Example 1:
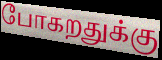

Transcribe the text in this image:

போகறதுக்கு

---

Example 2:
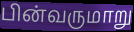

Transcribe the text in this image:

பின்வருமாறு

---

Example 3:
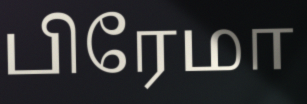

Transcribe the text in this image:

பிரேமா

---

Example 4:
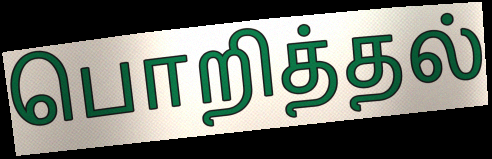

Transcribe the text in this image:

பொறித்தல்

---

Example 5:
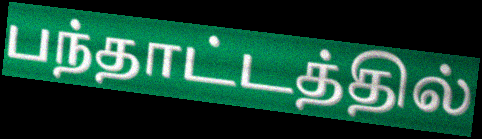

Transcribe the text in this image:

பந்தாட்டத்தில்